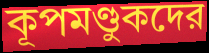
কূপমণ্ডুকদের